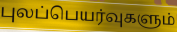
புலப்பெயர்வுகளும்